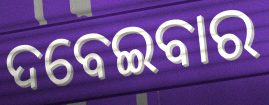
ଦବେଇବାର